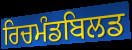
ਰਿਚਮੰਡਬਿਲਡ